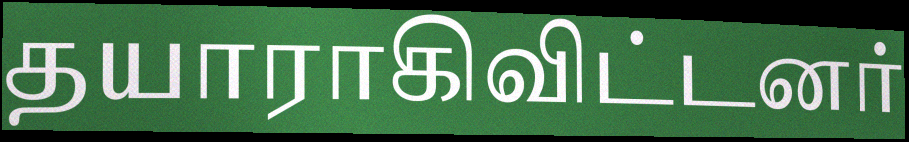
தயாராகிவிட்டனர்